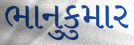
ભાનુકુમાર